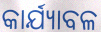
କାର୍ଯ୍ୟାବଳ